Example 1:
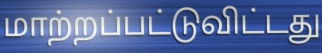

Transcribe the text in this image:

மாற்றப்பட்டுவிட்டது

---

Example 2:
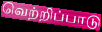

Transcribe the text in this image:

வெற்றிப்பாடு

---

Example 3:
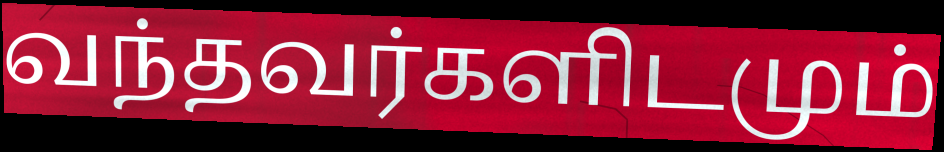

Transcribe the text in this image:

வந்தவர்களிடமும்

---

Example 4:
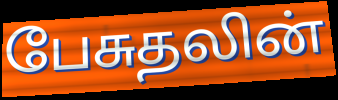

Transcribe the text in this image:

பேசுதலின்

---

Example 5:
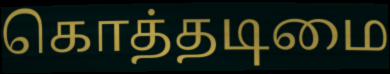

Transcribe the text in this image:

கொத்தடிமை